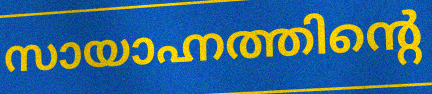
സായാഹ്നത്തിന്റെ